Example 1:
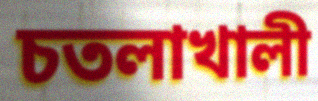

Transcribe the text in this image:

চতলাখালী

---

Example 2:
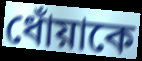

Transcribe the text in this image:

ধোঁয়াকে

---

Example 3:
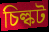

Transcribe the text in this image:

চিল্কট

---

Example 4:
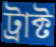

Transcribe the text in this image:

ট্রাক্ট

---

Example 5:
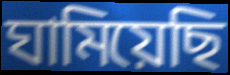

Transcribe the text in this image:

ঘামিয়েছি